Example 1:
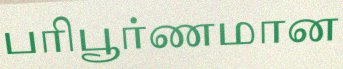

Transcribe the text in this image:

பரிபூர்ணமான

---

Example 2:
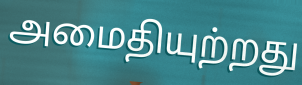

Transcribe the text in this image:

அமைதியுற்றது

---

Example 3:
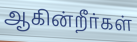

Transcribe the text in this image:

ஆகின்றீர்கள்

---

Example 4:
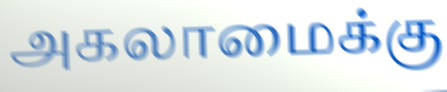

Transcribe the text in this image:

அகலாமைக்கு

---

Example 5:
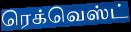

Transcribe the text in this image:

ரெக்வெஸ்ட்